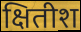
क्षितीश